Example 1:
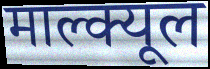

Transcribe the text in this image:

माल्क्यूल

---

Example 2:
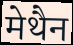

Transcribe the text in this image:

मेथैन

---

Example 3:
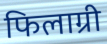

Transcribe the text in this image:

फिलाग्री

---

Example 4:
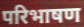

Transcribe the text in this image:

परिभाषण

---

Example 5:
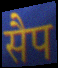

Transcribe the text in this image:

सैप